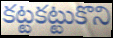
కట్టకట్టుకొని